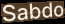
Sabdo